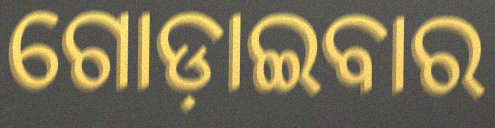
ଗୋଡ଼ାଇବାର